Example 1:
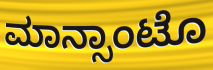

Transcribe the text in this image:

ಮಾನ್ಸಾಂಟೊ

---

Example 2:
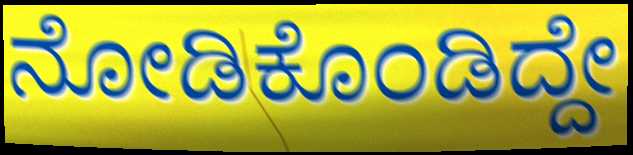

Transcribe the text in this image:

ನೋಡಿಕೊಂಡಿದ್ದೇ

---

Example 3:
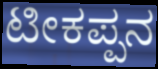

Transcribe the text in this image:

ಟೀಕಪ್ಪನ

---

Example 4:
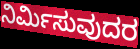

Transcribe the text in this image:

ನಿರ್ಮಿಸುವುದರ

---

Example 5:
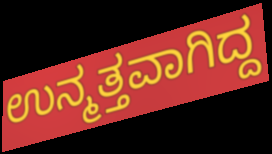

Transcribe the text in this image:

ಉನ್ಮತ್ತವಾಗಿದ್ದ